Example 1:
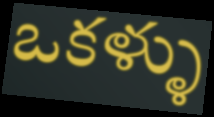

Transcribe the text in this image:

ఒకళ్ళు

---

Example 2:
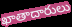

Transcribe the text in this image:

ఖాతాదారులు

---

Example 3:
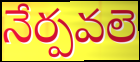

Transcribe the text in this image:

నేర్పవలె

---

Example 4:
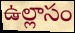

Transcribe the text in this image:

ఉల్లాసం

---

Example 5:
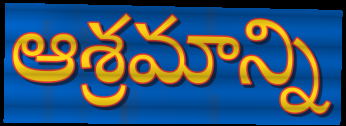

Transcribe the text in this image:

ఆశ్రమాన్ని